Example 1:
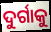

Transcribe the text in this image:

ଦୁର୍ଗାକୁ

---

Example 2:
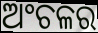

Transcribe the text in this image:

ଅଂଚଳର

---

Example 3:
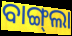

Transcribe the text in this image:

ବାଙ୍ଗ୍‍ଲା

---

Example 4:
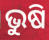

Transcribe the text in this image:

ଭୁଷି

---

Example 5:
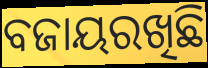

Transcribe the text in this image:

ବଜାୟରଖିଛି